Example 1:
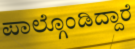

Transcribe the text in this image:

ಪಾಲ್ಗೊಂಡಿದ್ದಾರೆ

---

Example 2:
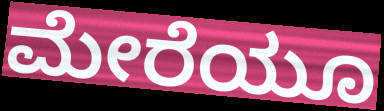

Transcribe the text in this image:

ಮೇರೆಯೂ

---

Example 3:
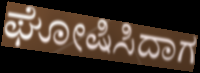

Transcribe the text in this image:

ಘೋಷಿಸಿದಾಗ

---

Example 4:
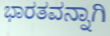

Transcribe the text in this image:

ಭಾರತವನ್ನಾಗಿ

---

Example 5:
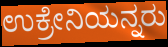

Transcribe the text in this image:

ಉಕ್ರೇನಿಯನ್ನರು